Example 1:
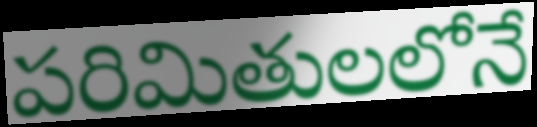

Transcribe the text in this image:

పరిమితులలోనే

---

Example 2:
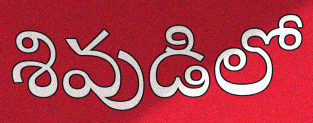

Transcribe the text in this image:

శివుడిలో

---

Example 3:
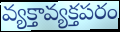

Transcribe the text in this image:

వ్యక్తావ్యక్తపరం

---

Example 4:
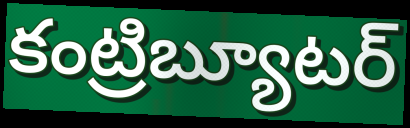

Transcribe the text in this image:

కంట్రిబ్యూటర్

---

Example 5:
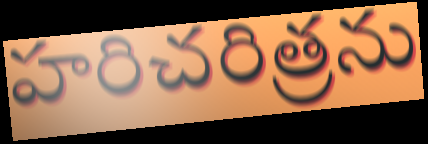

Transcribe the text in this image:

హరిచరిత్రను